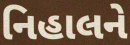
નિહાલને